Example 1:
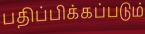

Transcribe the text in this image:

பதிப்பிக்கப்படும்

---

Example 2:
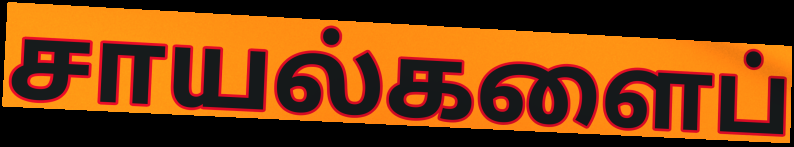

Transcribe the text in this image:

சாயல்களைப்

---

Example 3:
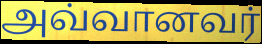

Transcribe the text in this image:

அவ்வானவர்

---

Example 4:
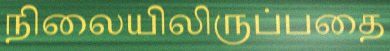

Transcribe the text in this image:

நிலையிலிருப்பதை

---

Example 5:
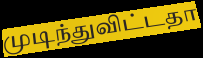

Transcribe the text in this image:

முடிந்துவிட்டதா